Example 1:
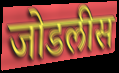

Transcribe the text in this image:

जोडलीस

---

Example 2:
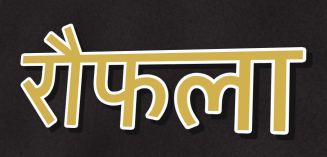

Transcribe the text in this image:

रौफला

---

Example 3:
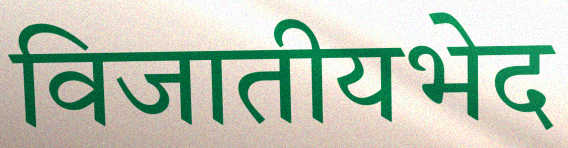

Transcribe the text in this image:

विजातीयभेद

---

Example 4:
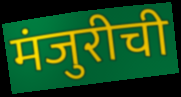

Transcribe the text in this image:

मंजुरीची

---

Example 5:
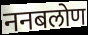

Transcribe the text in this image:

ननबलोण